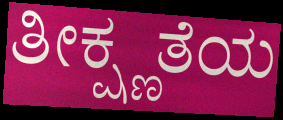
ತೀಕ್ಷ್ಣತೆಯ